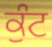
ਕੁੰਟ